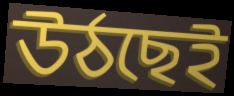
উঠছেই